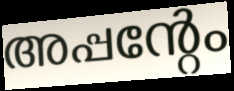
അപ്പന്റേം